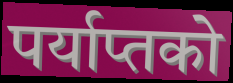
पर्याप्तको